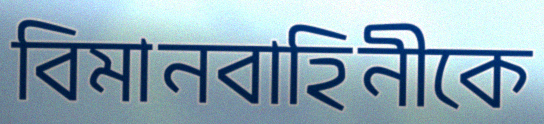
বিমানবাহিনীকে